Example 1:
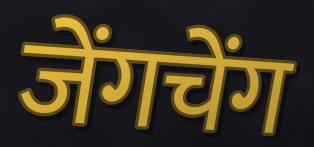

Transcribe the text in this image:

जेंगचेंग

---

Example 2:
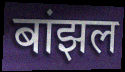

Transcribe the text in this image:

बांझल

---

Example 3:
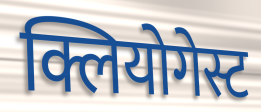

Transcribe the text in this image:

क्लियोगेस्ट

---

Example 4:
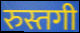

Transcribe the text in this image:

रुस्तगी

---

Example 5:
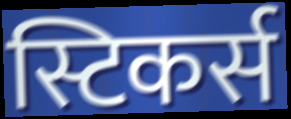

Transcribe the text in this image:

स्टिकर्स